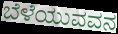
ಬೆಳೆಯುವವನ